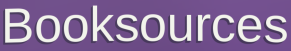
Booksources